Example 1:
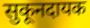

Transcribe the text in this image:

सुकूनदायक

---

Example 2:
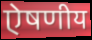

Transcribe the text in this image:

ऐषणीय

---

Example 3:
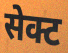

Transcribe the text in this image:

सेक्ट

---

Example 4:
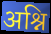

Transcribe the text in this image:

अश्नि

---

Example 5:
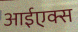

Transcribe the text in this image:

आईएक्स